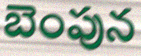
బెంపున